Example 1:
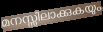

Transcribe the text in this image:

മനസ്സിലാക്കുകയും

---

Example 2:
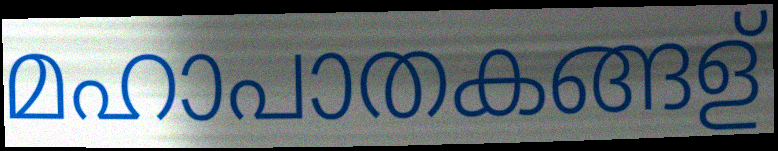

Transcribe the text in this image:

മഹാപാതകങ്ങള്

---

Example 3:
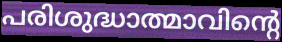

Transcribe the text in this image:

പരിശുദ്ധാത്മാവിന്റെ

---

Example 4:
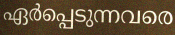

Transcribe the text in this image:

ഏർപ്പെടുന്നവരെ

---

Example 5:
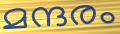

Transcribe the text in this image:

മന്ദരം